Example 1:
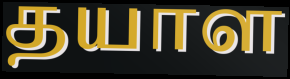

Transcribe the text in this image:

தயாள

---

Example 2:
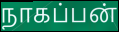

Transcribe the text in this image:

நாகப்பன்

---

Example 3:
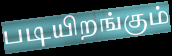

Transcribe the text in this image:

படியிறங்கும்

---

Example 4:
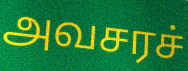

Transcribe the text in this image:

அவசரச்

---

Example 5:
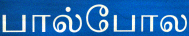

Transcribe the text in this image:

பால்போல